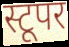
स्टूपर